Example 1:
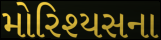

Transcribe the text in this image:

મોરિશ્યસના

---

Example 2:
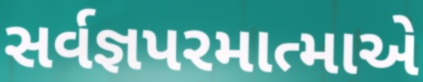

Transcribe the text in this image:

સર્વજ્ઞપરમાત્માએ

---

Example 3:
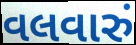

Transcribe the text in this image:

વલવારું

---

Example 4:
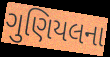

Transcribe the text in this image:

ગુણિયલના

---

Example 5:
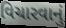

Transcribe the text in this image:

વિચારવાનું